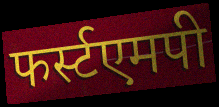
फर्स्टएमपी